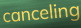
canceling